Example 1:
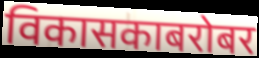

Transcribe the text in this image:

विकासकाबरोबर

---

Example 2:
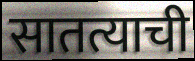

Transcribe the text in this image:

सातत्याची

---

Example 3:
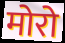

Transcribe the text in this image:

मोरो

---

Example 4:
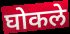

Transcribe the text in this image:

घोकले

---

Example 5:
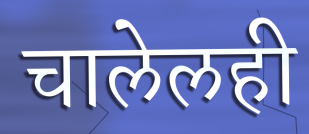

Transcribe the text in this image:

चालेलही